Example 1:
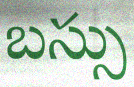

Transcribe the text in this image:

బస్సు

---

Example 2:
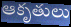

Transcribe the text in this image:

ఆకృతులు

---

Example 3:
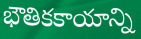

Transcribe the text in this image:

భౌతికకాయాన్ని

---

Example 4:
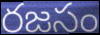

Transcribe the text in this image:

రజసం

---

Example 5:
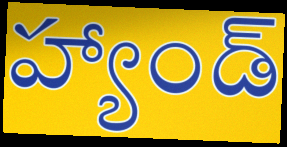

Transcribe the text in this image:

హ్యాండ్